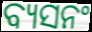
ବ୍ୟସନଂ